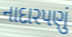
નાદારપણું